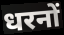
धरनों